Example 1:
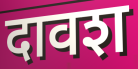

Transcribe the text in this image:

दावश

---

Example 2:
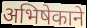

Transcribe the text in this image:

अभिषेकाने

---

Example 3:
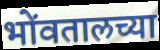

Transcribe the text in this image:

भोंवतालच्या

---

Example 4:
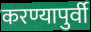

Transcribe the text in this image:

करण्यापुर्वी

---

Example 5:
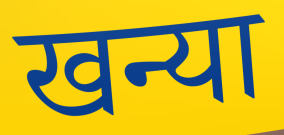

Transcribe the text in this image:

खन्या